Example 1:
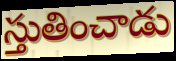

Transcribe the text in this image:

స్తుతించాడు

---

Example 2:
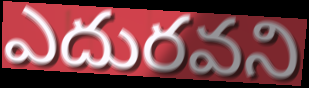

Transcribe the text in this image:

ఎదురవని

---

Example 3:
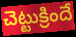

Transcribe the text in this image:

చెట్టుక్రిందే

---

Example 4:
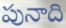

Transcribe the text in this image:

పునాది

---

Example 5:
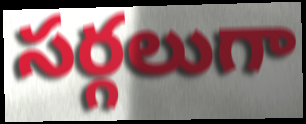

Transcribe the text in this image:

సర్గలుగా